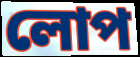
লোপ